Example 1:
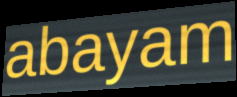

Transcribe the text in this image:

abayam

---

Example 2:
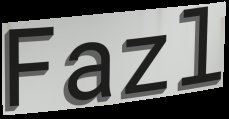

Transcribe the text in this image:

Fazl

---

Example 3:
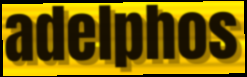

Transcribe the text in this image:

adelphos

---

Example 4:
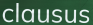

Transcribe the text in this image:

clausus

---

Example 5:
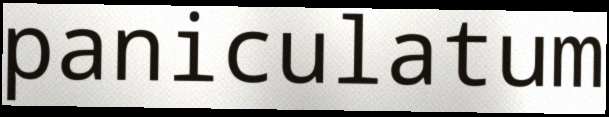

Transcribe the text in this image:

paniculatum